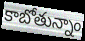
కాబోతున్నాం